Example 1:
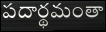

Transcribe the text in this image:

పదార్థమంతా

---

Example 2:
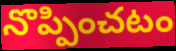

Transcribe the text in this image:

నొప్పించటం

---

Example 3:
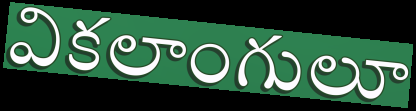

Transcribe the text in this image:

వికలాంగులూ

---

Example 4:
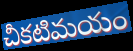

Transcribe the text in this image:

చీకటిమయం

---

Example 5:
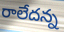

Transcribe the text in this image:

రాలేదన్న